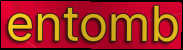
entomb